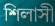
শিলাসী